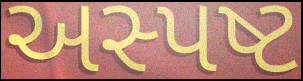
અસ્પષ્ટ